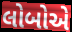
લોબોએ